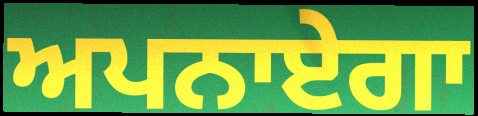
ਅਪਨਾਏਗਾ